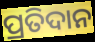
ପ୍ରତିଦାନ